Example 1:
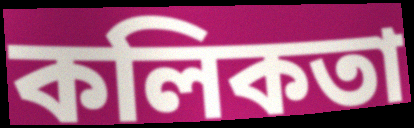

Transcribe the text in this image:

কলিকতা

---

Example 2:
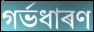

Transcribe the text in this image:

গৰ্ভধাৰণ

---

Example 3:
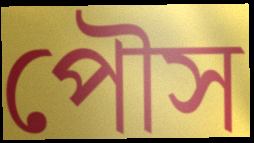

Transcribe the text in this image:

পৌস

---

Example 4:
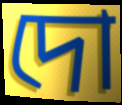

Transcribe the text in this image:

দো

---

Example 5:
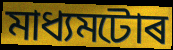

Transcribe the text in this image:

মাধ্যমটোৰ